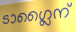
ടാഗ്ലൈന്